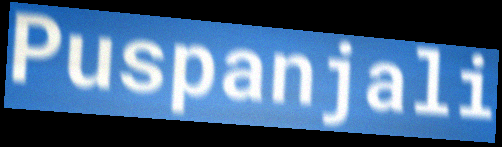
Puspanjali